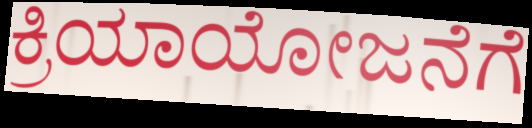
ಕ್ರಿಯಾಯೋಜನೆಗೆ